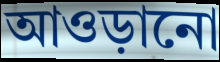
আওড়ানো